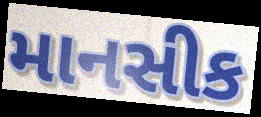
માનસીક